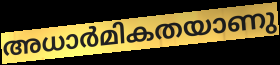
അധാർമികതയാണു